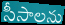
సీసాలను